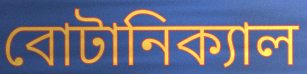
বোটানিক্যাল